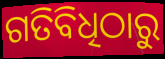
ଗତିବିଧିଠାରୁ